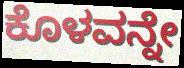
ಕೊಳವನ್ನೇ